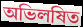
অভিলষিত